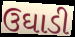
ઉઘાડી